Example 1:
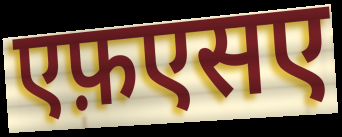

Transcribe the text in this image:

एफ़एसए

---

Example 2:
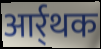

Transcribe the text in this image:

आर्र्थक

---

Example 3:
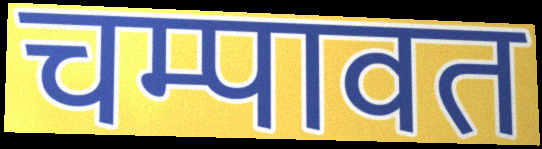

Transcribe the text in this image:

चम्पावत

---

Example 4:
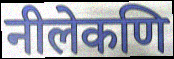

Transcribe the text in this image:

नीलेकणि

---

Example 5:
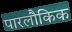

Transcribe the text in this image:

पारलौकिक